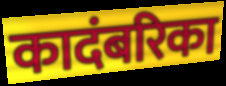
कादंबरिका